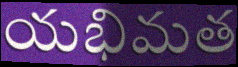
యభిమత